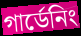
গার্ডেনিং